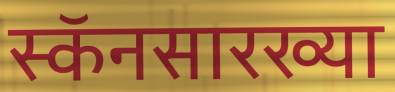
स्कॅनसारख्या